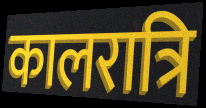
कालरात्रि